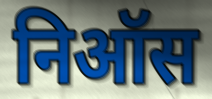
निऑस